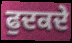
ਫੁਦਕਦੇ